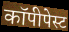
कॉपीपेस्ट